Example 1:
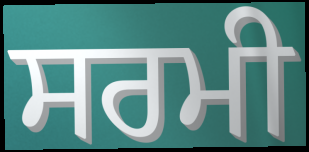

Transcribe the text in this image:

ਸਰਮੀ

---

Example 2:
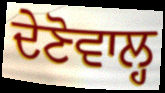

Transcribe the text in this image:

ਦੇਣੋਵਾਲ੍ਹ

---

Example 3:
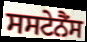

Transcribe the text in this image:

ਸਸਟੇਨੈਂਸ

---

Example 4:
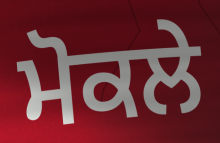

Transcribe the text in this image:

ਮੋਕਲੇ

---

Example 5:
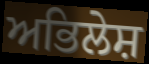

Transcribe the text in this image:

ਅਭਿਲੇਸ਼